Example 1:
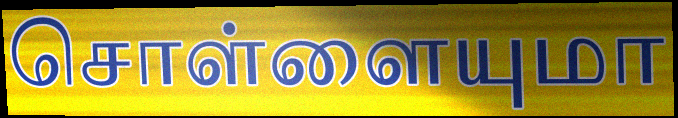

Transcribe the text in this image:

சொள்ளையுமா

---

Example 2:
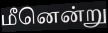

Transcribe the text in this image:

மீனென்று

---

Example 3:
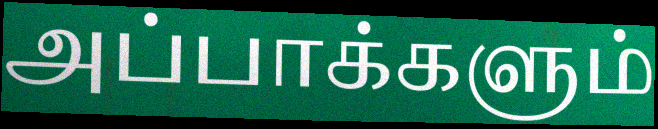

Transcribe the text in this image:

அப்பாக்களும்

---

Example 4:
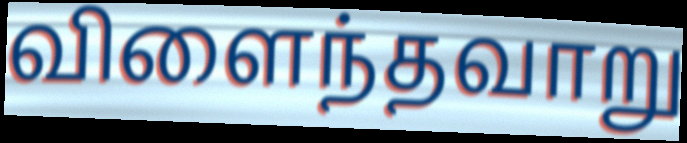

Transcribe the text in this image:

விளைந்தவாறு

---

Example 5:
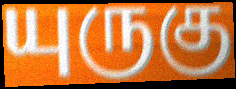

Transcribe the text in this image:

யுருகு